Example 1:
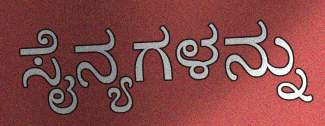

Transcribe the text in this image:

ಸೈನ್ಯಗಳನ್ನು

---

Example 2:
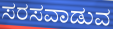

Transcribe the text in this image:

ಸರಸವಾಡುವ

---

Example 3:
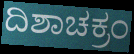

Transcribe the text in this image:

ದಿಶಾಚಕ್ರಂ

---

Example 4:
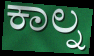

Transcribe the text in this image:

ಕಾಲ್ನ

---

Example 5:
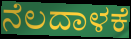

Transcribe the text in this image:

ನೆಲದಾಳಕೆ